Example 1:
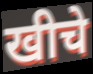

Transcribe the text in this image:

खीचे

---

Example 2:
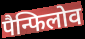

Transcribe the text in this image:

पैन्फिलोव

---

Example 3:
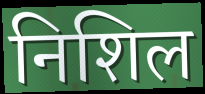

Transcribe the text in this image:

निशिल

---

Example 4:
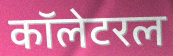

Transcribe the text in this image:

कॉलेटरल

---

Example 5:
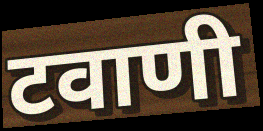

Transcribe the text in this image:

टवाणी